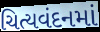
ચિત્યવંદનમાં